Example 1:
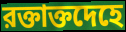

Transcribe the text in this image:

রক্তাক্তদেহে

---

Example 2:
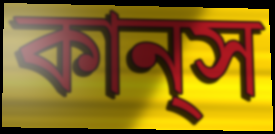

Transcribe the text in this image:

কান্‌স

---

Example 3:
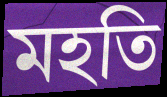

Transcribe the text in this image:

মহতি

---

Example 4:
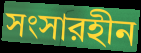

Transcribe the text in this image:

সংসারহীন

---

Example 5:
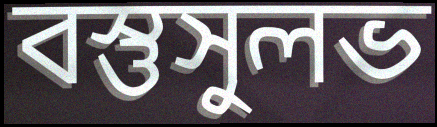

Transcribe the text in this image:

বস্তুসুলভ